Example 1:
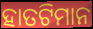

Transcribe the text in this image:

ହାତଟିମାନ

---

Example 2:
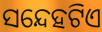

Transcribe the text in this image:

ସନ୍ଦେହଟିଏ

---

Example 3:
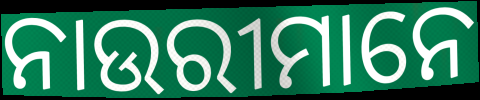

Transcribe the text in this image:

ନାଉରୀମାନେ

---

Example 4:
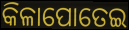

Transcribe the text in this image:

କିଳାପୋତେଇ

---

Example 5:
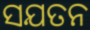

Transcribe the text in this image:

ସଯତନ